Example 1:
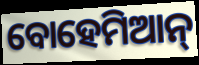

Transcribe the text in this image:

ବୋହେମିଆନ୍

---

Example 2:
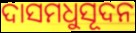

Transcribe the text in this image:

ଦାସମଧୁସୂଦନ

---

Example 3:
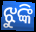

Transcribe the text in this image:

ଝୁଙ୍କି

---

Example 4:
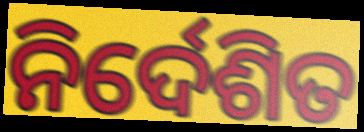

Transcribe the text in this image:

ନିର୍ଦେଶିତ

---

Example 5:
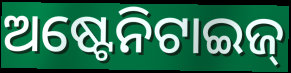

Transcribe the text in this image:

ଅଷ୍ଟେନିଟାଇଜ୍